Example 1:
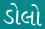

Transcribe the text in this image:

ડોલો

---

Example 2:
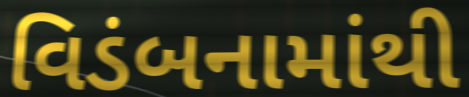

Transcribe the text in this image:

વિડંબનામાંથી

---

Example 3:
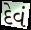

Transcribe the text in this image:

દેવં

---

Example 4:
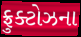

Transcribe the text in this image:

ફ્રુક્ટોઝના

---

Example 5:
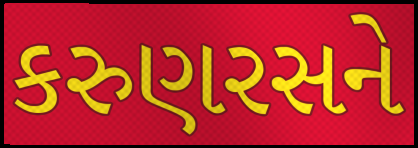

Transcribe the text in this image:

કરુણરસને